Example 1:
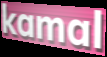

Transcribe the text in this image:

kamal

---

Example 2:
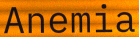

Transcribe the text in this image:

Anemia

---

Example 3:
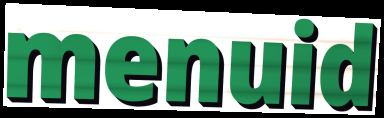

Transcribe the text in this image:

menuid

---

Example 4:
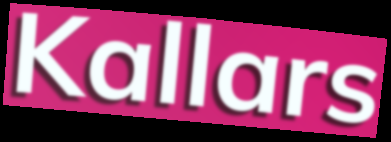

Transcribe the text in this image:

Kallars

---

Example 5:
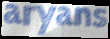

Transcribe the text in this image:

aryans